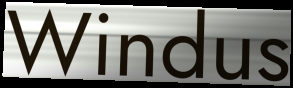
Windus